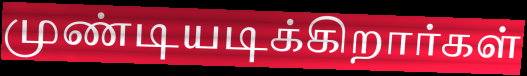
முண்டியடிக்கிறார்கள்